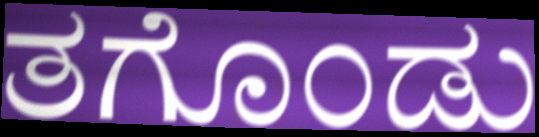
ತಗೊಂಡು